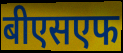
बीएसएफ